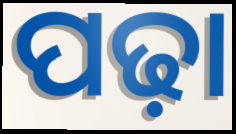
ପଢ଼ା